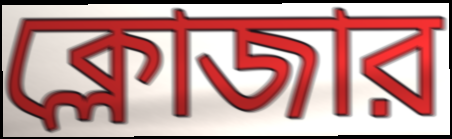
ক্লোজার